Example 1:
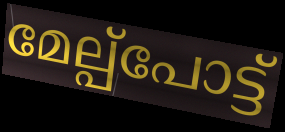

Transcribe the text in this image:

മേല്പ്പോട്ട്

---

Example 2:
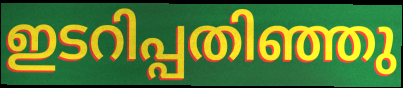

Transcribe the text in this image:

ഇടറിപ്പതിഞ്ഞു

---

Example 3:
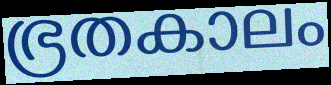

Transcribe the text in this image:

ഭ്രതകാലം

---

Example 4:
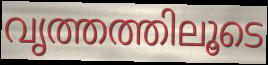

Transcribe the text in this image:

വൃത്തത്തിലൂടെ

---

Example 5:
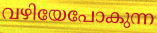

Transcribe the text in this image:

വഴിയേപോകുന്ന